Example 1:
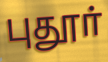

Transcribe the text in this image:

புதூர்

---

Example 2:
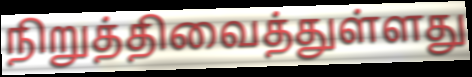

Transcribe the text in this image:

நிறுத்திவைத்துள்ளது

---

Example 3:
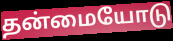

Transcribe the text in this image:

தன்மையோடு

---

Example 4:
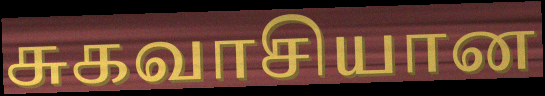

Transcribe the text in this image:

சுகவாசியான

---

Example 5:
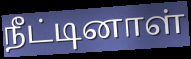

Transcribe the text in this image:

நீட்டினாள்